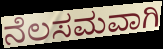
ನೆಲಸಮವಾಗಿ